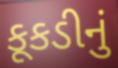
કૂકડીનું